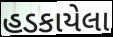
હડકાયેલા